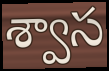
శ్వాస